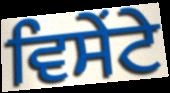
ਵਿਸੇਂਟੇ